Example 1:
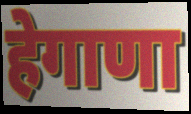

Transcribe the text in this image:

हेगाणा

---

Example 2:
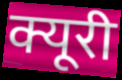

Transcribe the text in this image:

क्यूरी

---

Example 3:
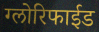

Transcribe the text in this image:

ग्लोरिफाईड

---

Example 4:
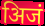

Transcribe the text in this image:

अिजं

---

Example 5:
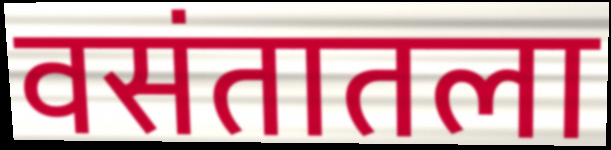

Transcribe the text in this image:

वसंतातला